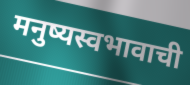
मनुष्यस्वभावाची